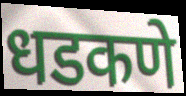
धडकणे